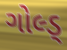
ગોલ્ડ્